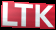
LTK